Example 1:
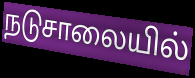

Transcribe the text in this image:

நடுசாலையில்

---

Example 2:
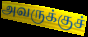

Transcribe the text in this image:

அவருக்குச்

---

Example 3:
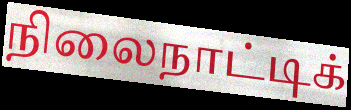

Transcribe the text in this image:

நிலைநாட்டிக்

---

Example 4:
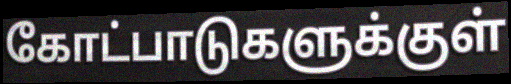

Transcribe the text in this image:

கோட்பாடுகளுக்குள்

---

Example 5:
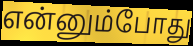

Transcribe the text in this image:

என்னும்போது